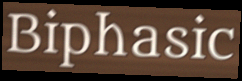
Biphasic